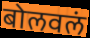
बोलवलं